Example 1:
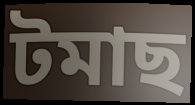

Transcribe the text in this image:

টমাছ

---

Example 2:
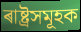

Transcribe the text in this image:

ৰাষ্ট্ৰসমূহক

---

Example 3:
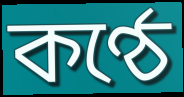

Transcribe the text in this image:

কণ্ঠে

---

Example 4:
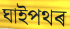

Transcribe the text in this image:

ঘাইপথৰ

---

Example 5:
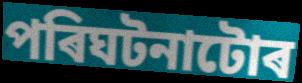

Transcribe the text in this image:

পৰিঘটনাটোৰ